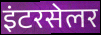
इंटरसेलर